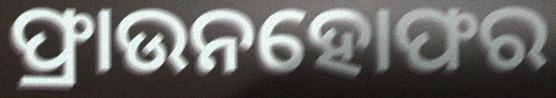
ଫ୍ରାଉନହୋଫର